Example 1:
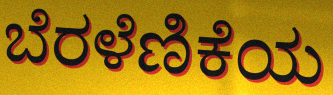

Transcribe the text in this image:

ಬೆರಳೆಣಿಕೆಯ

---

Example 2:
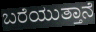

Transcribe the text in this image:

ಬರೆಯುತ್ತಾನೆ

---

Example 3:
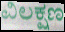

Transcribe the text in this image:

ವಿಲಕ್ಷಣ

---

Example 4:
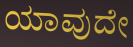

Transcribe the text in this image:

ಯಾವುದೇ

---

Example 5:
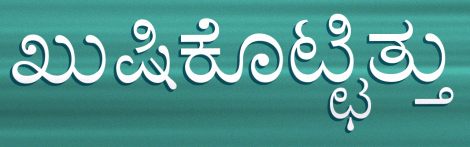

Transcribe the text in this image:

ಖುಷಿಕೊಟ್ಟಿತ್ತು